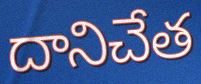
దానిచేత